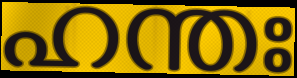
ഹന്തഃ